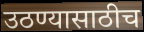
उठण्यासाठीच